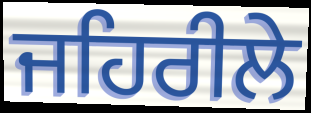
ਜਹਿਰੀਲੇ